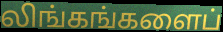
லிங்கங்களைப்